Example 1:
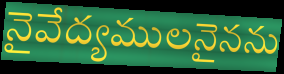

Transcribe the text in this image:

నైవేద్యములనైనను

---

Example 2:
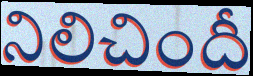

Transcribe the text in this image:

నిలిచిందీ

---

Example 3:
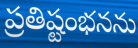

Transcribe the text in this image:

ప్రతిష్టంభనను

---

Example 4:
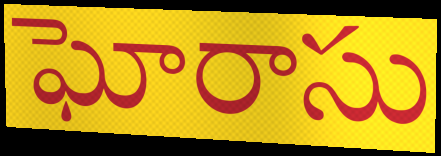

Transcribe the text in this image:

ఘోరాసు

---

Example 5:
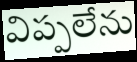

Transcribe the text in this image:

విప్పలేను